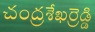
చంద్రశేఖర్రెడ్డి